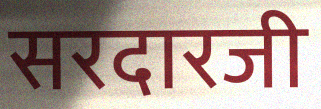
सरदारजी